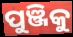
ପୁଞ୍ଜିକୁ